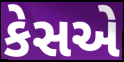
કેસએ